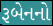
રૂબેનનો